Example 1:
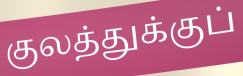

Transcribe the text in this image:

குலத்துக்குப்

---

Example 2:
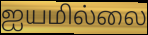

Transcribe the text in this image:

ஐயமில்லை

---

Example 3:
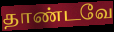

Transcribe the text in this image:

தாண்டவே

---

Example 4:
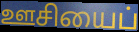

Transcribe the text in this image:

ஊசியைப்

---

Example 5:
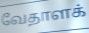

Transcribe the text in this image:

வேதாளக்